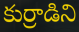
కుర్రాడిని